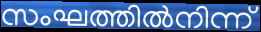
സംഘത്തിൽനിന്ന്